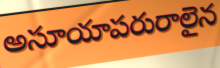
అసూయాపరురాలైన